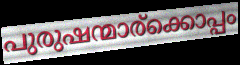
പുരുഷന്മാര്ക്കൊപ്പം